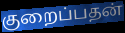
குறைப்பதன்